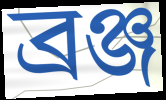
ব্ৰঞ্জ